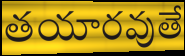
తయారవుతే